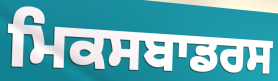
ਮਿਕਸਬਾਡਰਸ